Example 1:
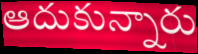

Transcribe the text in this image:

ఆదుకున్నారు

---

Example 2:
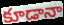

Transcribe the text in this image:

కూడానా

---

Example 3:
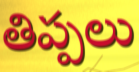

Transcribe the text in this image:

తిప్పలు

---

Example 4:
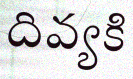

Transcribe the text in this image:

దివ్యకి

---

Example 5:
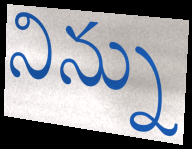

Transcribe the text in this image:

నిన్ను